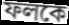
ফলকে